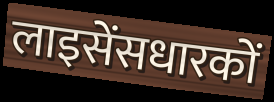
लाइसेंसधारकों